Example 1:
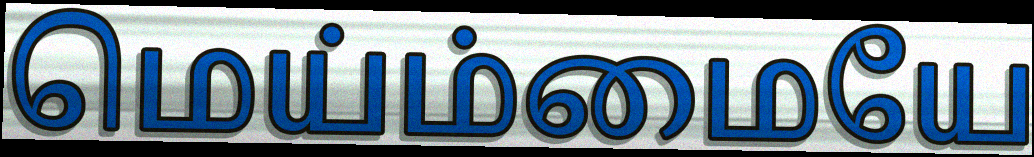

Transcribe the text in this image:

மெய்ம்மையே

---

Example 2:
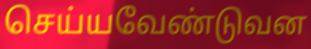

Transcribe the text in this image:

செய்யவேண்டுவன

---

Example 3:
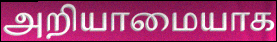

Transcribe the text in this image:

அறியாமையாக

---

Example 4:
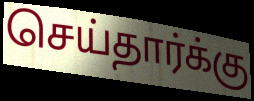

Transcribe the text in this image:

செய்தார்க்கு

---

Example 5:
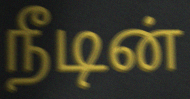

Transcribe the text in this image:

நீடின்